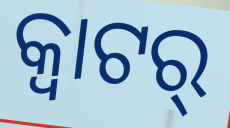
କ୍ୱାଟର୍